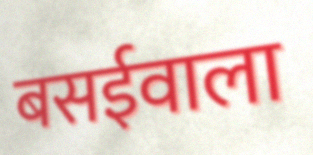
बसईवाला